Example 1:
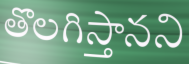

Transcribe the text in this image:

తొలగిస్తానని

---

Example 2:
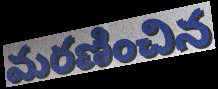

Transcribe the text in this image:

మరణించిన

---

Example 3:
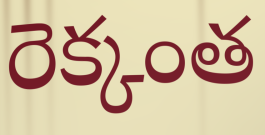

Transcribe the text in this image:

రెక్కంత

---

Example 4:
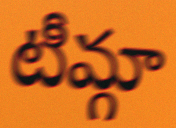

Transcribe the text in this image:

టీమ్గా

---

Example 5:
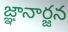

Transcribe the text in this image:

జ్ఞానార్జన